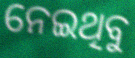
ନେଇଥିବୁ